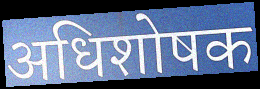
अधिशोषक